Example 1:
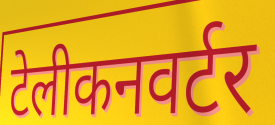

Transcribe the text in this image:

टेलीकनवर्टर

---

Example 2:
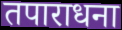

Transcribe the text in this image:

तपाराधना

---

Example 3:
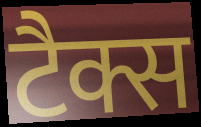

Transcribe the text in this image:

टैक्स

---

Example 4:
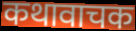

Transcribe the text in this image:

कथावाचक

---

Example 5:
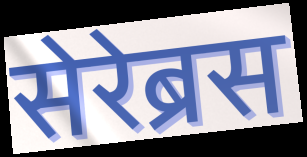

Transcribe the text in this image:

सेरेब्रस